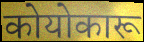
कोयोकारू